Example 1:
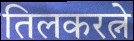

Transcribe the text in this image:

तिलकरत्ने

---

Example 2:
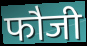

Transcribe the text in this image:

फौजी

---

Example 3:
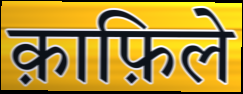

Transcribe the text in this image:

क़ाफ़िले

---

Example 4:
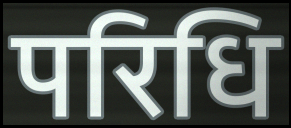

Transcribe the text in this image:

परिधि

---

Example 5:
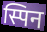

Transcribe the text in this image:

स्पिन